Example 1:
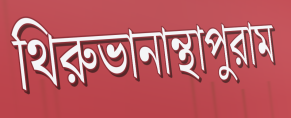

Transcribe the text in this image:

থিরুভানান্থাপুরাম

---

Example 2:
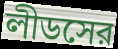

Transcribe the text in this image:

লীডসের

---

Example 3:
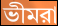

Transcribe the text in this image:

ভীমরা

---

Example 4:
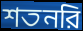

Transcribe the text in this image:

শতনরি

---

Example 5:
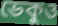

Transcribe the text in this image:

ভেকুও